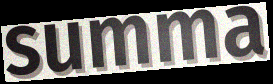
summa